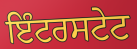
ਇੰਟਰਸਟੇਟ